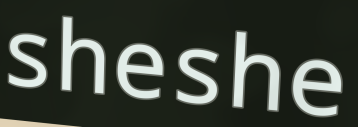
sheshe